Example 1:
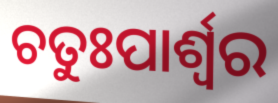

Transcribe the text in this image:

ଚତୁଃପାର୍ଶ୍ଵର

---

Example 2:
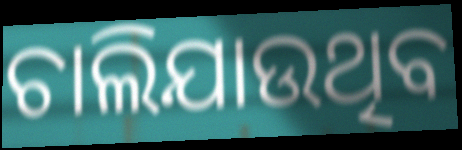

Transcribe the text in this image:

ଚାଲିଯାଉଥିବ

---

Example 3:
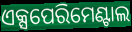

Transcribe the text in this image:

ଏକ୍ସପେରିମେଣ୍ଟାଲ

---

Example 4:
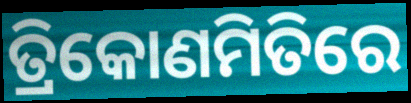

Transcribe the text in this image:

ତ୍ରିକୋଣମିତିରେ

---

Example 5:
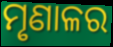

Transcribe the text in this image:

ମୃଣାଳର